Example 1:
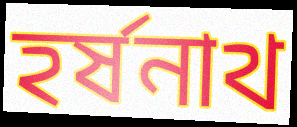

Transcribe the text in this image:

হর্ষনাথ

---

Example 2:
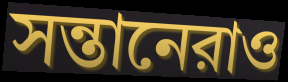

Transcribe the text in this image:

সন্তানেরাও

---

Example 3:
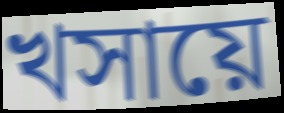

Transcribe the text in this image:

খসায়ে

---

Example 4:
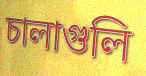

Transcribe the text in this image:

চালাগুলি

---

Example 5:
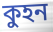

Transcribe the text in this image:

কুহন